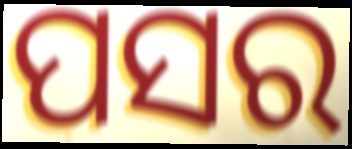
ପସର